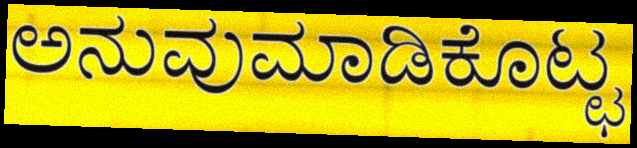
ಅನುವುಮಾಡಿಕೊಟ್ಟ